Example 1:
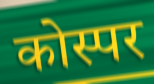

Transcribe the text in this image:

कोस्पर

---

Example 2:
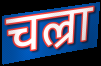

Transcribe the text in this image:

चल्रा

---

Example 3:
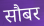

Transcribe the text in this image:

सौबर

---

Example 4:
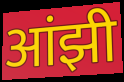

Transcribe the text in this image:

आंझी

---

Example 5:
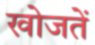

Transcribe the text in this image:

खोजतें